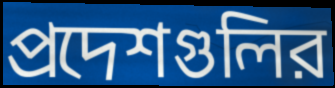
প্রদেশগুলির